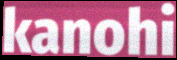
kanohi